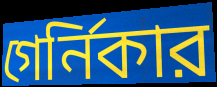
গের্নিকার